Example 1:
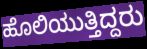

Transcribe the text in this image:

ಹೊಲಿಯುತ್ತಿದ್ದರು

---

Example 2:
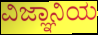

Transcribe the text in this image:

ವಿಜ್ಞಾನಿಯ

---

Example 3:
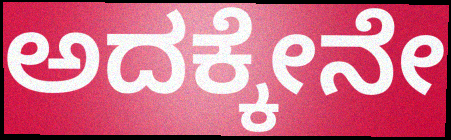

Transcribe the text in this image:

ಅದಕ್ಕೇನೇ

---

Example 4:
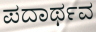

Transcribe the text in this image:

ಪದಾರ್ಥವ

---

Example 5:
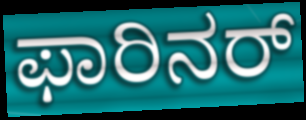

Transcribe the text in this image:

ಫಾರಿನರ್